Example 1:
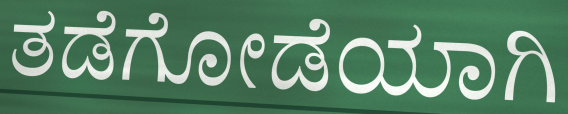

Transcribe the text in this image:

ತಡೆಗೋಡೆಯಾಗಿ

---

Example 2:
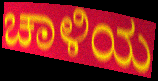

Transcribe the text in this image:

ಚಾಳಿಯ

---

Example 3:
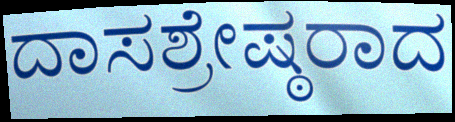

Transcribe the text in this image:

ದಾಸಶ್ರೇಷ್ಠರಾದ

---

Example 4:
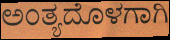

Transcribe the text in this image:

ಅಂತ್ಯದೊಳಗಾಗಿ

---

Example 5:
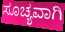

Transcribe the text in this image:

ಸೂಚ್ಯವಾಗಿ